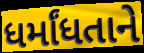
ધર્માંધતાને